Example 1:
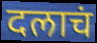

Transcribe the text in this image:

दलाचं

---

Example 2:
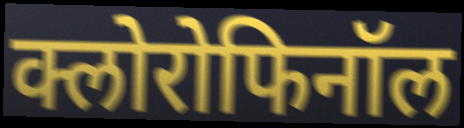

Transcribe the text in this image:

क्लोरोफिनॉल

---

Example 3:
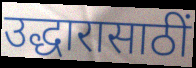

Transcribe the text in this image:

उद्धारासाठीं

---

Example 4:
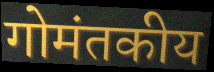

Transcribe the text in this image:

गोमंतकीय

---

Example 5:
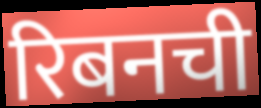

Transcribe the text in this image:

रिबनची